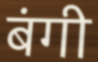
बंगी